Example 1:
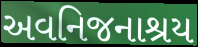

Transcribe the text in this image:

અવનિજનાશ્રય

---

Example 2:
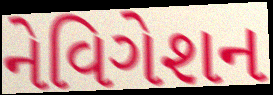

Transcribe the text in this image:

નેવિગેશન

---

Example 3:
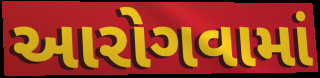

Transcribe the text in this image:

આરોગવામાં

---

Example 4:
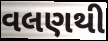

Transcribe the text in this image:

વલણથી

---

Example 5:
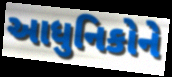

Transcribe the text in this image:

આધુનિકોને